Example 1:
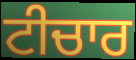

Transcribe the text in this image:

ਟੀਚਾਰ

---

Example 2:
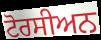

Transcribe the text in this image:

ਟੋਰਸੀਅਨ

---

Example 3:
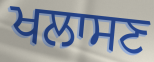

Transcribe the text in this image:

ਖਲਾਸਣ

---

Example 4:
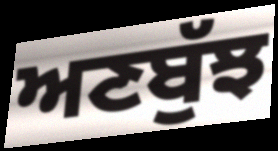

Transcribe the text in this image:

ਅਣਬੁੱਝ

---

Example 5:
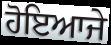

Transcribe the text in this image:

ਹੋਇਆਜੇ